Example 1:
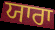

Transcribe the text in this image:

ਯਾਰਾ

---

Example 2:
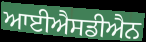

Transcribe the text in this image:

ਆਈਐਸਡੀਐਨ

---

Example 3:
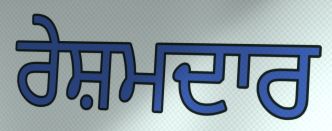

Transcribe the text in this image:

ਰੇਸ਼ਮਦਾਰ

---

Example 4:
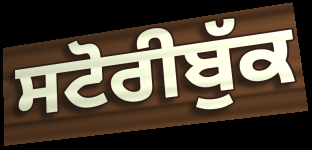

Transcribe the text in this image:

ਸਟੋਰੀਬੁੱਕ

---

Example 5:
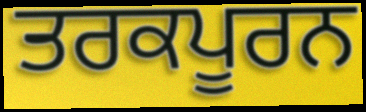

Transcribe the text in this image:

ਤਰਕਪੂਰਨ